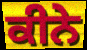
ਕੀਨੇ